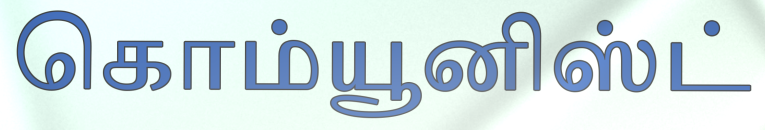
கொம்யூனிஸ்ட்